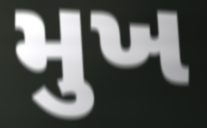
મુખ